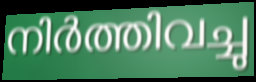
നിർത്തിവച്ചു